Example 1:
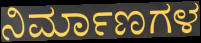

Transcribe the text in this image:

ನಿರ್ಮಾಣಗಳ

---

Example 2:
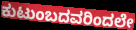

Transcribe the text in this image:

ಕುಟುಂಬದವರಿಂದಲೇ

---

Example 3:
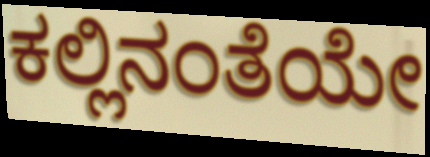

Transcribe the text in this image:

ಕಲ್ಲಿನಂತೆಯೇ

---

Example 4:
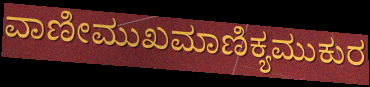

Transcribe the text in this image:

ವಾಣೀಮುಖಮಾಣಿಕ್ಯಮುಕುರ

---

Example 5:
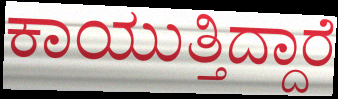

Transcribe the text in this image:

ಕಾಯುತ್ತಿದ್ದಾರೆ